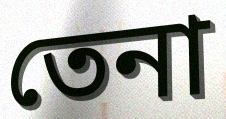
তেনা